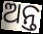
ଅନ୍ତ